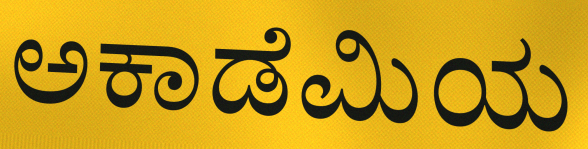
ಅಕಾಡೆಮಿಯ